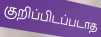
குறிப்பிடப்படாத